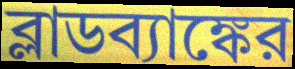
ব্লাডব্যাঙ্কের